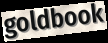
goldbook